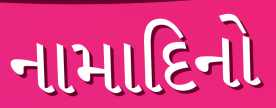
નામાદિનો